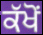
ਕੱਖੋਂ